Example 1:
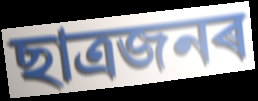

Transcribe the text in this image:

ছাত্ৰজনৰ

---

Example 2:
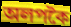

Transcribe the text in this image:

অলপকৈ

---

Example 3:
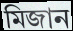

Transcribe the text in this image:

মিজান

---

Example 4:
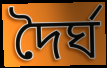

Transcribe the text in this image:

দৈৰ্ঘ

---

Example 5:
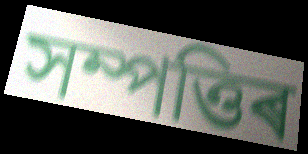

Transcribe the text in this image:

সম্পত্তিৰ